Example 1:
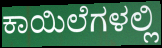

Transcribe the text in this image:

ಕಾಯಿಲೆಗಳಲ್ಲಿ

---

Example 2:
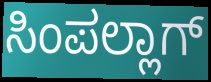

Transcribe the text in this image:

ಸಿಂಪಲ್ಲಾಗ್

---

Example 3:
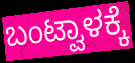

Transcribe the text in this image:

ಬಂಟ್ವಾಳಕ್ಕೆ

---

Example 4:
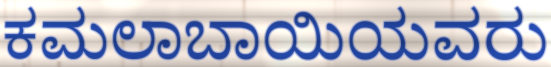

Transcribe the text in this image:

ಕಮಲಾಬಾಯಿಯವರು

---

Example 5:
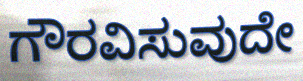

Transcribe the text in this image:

ಗೌರವಿಸುವುದೇ